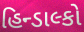
હિન્ડાલ્કો